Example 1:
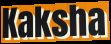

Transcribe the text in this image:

Kaksha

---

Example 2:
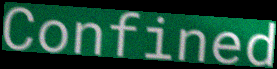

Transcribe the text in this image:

Confined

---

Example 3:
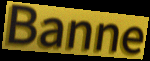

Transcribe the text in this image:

Banne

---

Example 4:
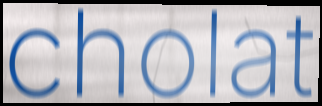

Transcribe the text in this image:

cholat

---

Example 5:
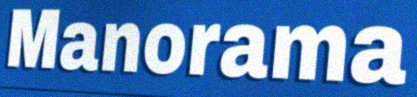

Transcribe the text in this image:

Manorama